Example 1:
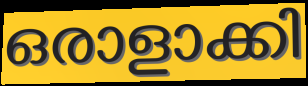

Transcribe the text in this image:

ഒരാളാക്കി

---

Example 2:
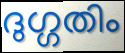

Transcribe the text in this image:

ദുഗ്ഗതിം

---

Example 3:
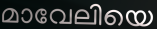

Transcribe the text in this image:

മാവേലിയെ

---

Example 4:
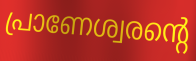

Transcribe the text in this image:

പ്രാണേശ്വരന്റെ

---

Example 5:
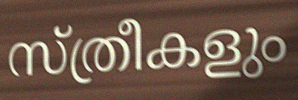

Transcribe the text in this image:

സ്ത്രീകളും